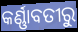
କର୍ଣ୍ଣାବତୀରୁ